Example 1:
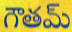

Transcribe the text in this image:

గౌతమ్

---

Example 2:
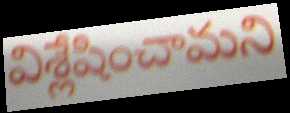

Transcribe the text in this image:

విశ్లేషించామని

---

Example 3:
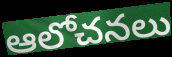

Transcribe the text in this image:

ఆలోచనలు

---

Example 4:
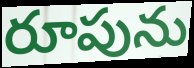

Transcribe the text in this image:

రూపును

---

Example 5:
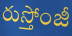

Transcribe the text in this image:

రుస్తోంజీ